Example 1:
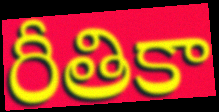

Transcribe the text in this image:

రీతికా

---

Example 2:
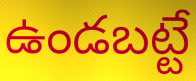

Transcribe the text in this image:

ఉండబట్టే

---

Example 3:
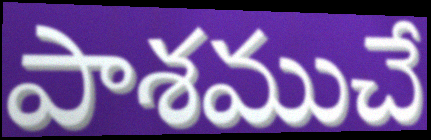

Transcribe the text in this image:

పాశముచే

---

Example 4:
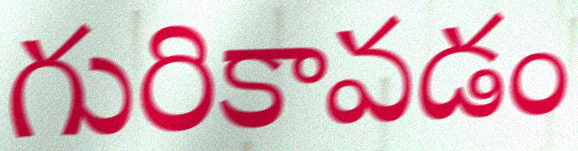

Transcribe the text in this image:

గురికావడం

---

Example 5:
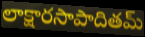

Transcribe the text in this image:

లాక్షారసాపాదితమ్